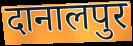
दानालपुर